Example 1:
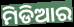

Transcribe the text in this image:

ମିଡିଆର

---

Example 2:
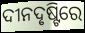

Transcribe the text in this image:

ଦୀନଦୃଷ୍ଟିରେ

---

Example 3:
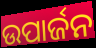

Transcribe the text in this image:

ଉପାର୍ଜନ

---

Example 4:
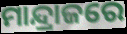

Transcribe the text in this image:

ମାନ୍ଦ୍ରାଜରେ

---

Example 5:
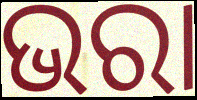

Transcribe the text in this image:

ଭରା